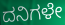
ದನಿಗಳೇ